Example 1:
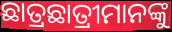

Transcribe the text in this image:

ଛାତ୍ରଛାତ୍ରୀମାନଙ୍କୁ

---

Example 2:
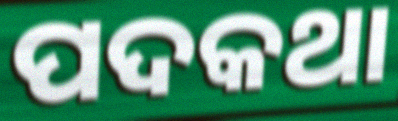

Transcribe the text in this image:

ପଦକଥା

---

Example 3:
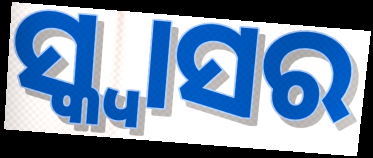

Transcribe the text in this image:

ସ୍କ୍ବାସର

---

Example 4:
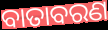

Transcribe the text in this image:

ବାତାବରଣ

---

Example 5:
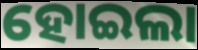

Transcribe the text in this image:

ହୋଇଲା